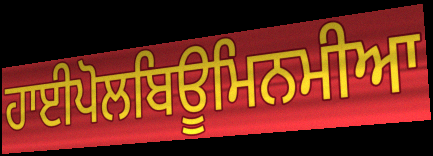
ਹਾਈਪੋਲਬਿਊਮਿਨਮੀਆ